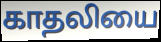
காதலியை